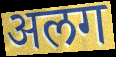
अलग